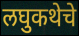
लघुकथेचे